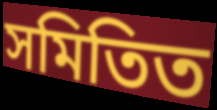
সমিতিত